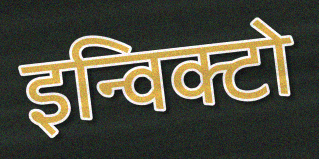
इन्विक्टो